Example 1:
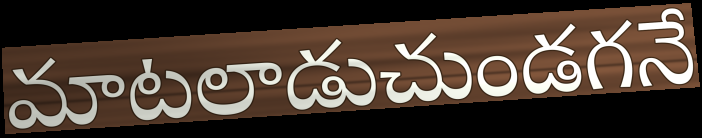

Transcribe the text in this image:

మాటలాడుచుండగనే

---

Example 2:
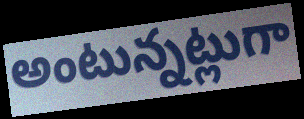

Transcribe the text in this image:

అంటున్నట్లుగా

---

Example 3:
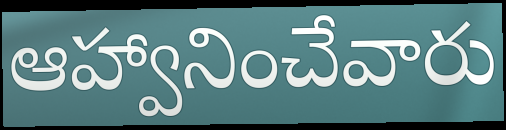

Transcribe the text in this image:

ఆహ్వానించేవారు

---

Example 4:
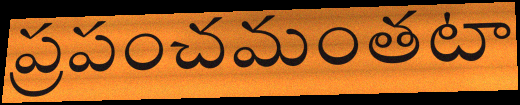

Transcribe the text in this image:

ప్రపంచమంతటా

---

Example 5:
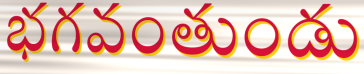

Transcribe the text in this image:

భగవంతుండు